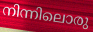
നിന്നിലൊരു